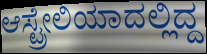
ಆಸ್ಟ್ರೇಲಿಯಾದಲ್ಲಿದ್ದ